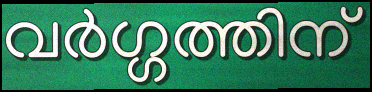
വർഗ്ഗത്തിന്